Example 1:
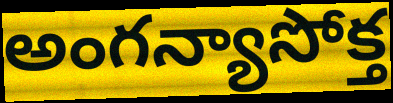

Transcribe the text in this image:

అంగన్యాసోక్త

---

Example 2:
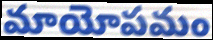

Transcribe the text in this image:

మాయోపమం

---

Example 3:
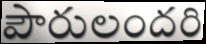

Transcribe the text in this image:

పౌరులందరి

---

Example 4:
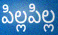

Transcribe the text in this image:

పిల్లపిల్ల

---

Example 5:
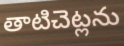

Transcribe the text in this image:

తాటిచెట్లను